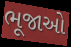
ભૂજાઓ